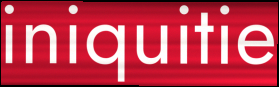
iniquitie